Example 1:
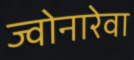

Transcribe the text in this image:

ज्वोनारेवा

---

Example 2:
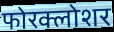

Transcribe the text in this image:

फोरक्लोशर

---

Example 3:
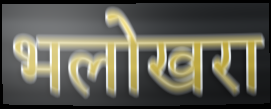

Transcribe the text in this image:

भलोखरा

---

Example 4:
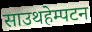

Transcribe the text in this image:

साउथहेम्पटन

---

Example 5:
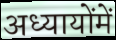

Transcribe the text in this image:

अध्यायोंमें